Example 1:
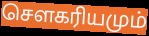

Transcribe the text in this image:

சௌகரியமும்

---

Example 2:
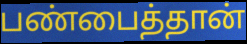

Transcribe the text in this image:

பண்பைத்தான்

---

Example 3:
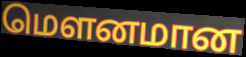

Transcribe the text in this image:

மௌனமான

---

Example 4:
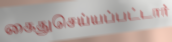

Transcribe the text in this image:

கைதுசெய்யப்பட்டார்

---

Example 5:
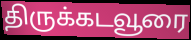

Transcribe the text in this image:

திருக்கடவூரை